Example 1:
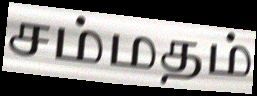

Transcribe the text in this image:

சம்மதம்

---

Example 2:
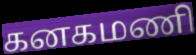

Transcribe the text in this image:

கனகமணி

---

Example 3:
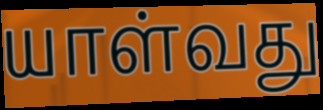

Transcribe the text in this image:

யாள்வது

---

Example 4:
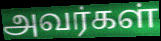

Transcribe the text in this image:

அவர்கள்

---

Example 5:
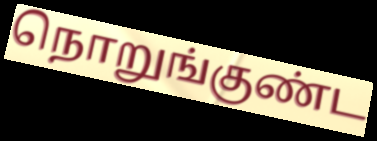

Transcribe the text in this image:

நொறுங்குண்ட